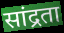
सांद्रता